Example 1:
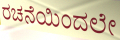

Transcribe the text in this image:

ರಚನೆಯಿಂದಲೇ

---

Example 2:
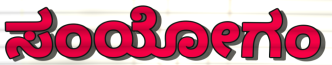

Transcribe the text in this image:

ಸಂಯೋಗಂ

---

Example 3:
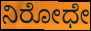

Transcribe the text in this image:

ನಿರೋಧೇ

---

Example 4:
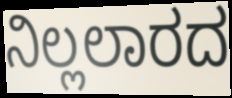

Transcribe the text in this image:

ನಿಲ್ಲಲಾರದ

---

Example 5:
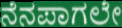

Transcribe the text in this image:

ನೆನಪಾಗಲೇ